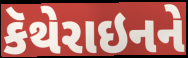
કૅથેરાઇનને